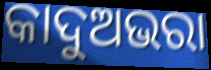
କାଦୁଅଭରା